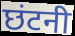
छंटनी